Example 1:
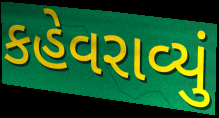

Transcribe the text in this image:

કહેવરાવ્યું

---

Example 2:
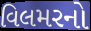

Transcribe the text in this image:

વિલમરનો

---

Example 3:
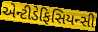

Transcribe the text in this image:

એન્ટીડેફિસિયન્સી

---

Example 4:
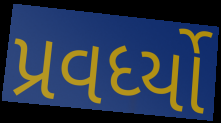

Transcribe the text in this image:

પ્રવર્ધ્યો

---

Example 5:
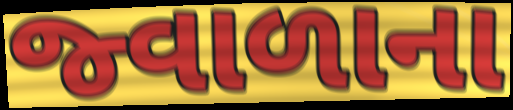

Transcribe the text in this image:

જ્વાળાના